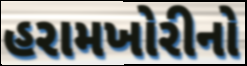
હરામખોરીનો